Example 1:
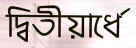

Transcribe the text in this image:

দ্বিতীয়ার্ধে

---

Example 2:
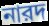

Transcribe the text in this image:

নারদ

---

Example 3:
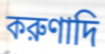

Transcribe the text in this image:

করুণাদি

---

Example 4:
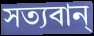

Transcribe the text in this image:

সত্যবান্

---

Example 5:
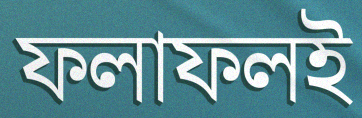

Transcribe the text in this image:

ফলাফলই